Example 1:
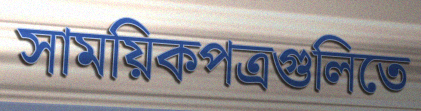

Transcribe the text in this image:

সাময়িকপত্রগুলিতে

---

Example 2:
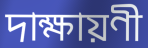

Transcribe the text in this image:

দাক্ষায়ণী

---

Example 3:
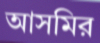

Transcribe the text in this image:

আসমির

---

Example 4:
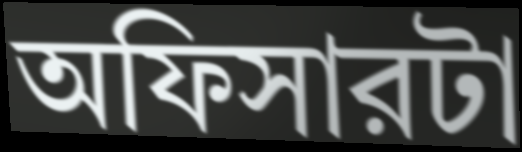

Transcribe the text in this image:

অফিসারটা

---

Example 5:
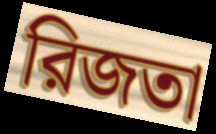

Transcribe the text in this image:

রিজতা